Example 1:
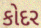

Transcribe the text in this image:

કોદર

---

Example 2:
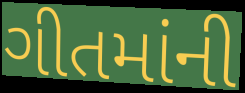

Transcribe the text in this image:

ગીતમાંની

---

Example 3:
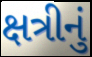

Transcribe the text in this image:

ક્ષત્રીનું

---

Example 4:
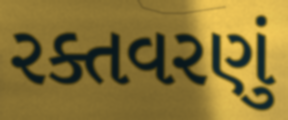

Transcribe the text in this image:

રક્તવરણું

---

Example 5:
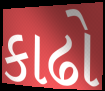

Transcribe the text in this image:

કાઢો